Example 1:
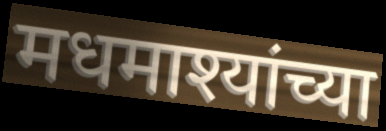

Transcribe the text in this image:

मधमाश्‍यांच्या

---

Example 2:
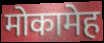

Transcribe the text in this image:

मोकामेह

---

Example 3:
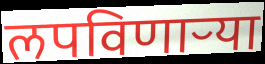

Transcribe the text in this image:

लपविणाऱ्या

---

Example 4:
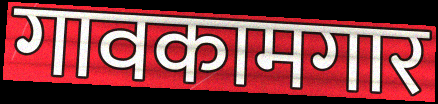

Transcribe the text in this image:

गावकामगार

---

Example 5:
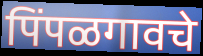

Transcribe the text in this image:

पिंपळगावचे